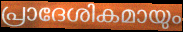
പ്രാദേശികമായും